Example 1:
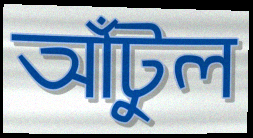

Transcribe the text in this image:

আঁটুল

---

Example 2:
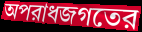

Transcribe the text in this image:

অপরাধজগতের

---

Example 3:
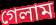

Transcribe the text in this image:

গেলাম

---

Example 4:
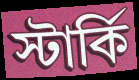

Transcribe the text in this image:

স্টার্কি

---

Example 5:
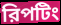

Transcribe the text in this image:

রিপটিং